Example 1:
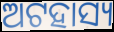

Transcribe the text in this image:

ଅଟହାସ୍ୟ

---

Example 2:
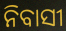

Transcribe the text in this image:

ନିବାସୀ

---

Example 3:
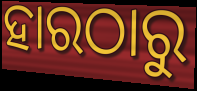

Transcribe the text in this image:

ହାରଠାରୁ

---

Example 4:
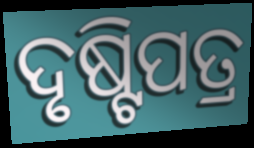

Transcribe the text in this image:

ଦୃଷ୍ଟିପତ୍ର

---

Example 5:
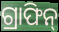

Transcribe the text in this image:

ଗ୍ରାଫିନ୍